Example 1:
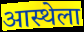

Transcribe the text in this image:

आस्थेला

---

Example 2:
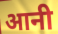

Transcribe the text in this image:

आनी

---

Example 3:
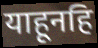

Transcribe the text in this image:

याहूनहि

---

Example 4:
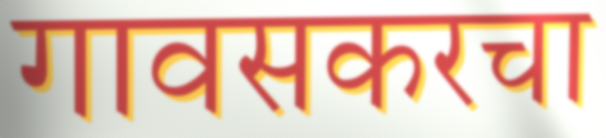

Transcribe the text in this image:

गावसकरचा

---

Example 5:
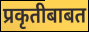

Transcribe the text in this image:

प्रकृतीबाबत